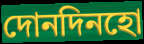
দোনদিনহো